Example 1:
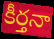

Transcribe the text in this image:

కీర్తనా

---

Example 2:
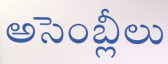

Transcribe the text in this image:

అసెంబ్లీలు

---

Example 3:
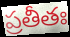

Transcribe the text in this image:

ప్రతీతః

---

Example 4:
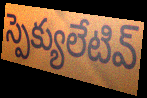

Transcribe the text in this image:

స్పెక్యులేటివ్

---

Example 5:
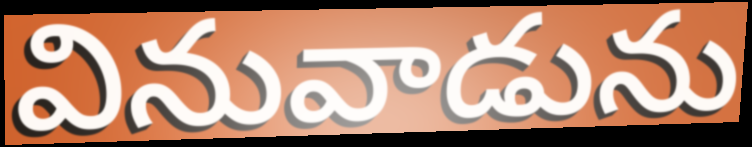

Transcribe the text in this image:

వినువాడును